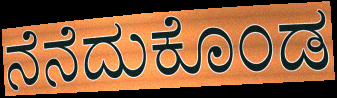
ನೆನೆದುಕೊಂಡ